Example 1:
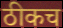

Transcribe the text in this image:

ठीकच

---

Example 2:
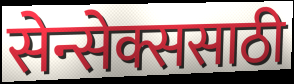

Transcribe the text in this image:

सेन्सेक्ससाठी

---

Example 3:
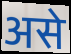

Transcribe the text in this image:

असे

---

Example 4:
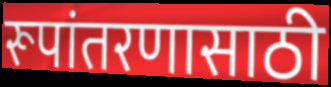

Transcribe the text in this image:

रूपांतरणासाठी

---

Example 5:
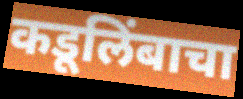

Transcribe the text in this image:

कडूलिंबाचा